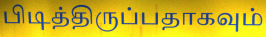
பிடித்திருப்பதாகவும்